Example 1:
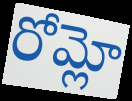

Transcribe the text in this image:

రోమ్లో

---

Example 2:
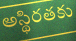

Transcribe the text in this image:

అస్థిరతకు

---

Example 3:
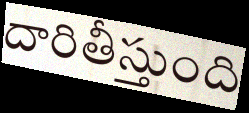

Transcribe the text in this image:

దారితీస్తుంది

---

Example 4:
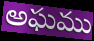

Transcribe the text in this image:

అఘము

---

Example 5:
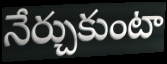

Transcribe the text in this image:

నేర్చుకుంటా